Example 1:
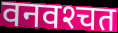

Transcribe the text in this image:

वनवश्चत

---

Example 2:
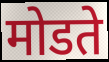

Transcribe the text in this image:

मोडते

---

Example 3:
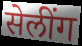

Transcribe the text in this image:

सेलींग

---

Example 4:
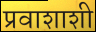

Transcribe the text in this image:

प्रवाशाशी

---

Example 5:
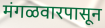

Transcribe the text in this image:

मंगळवारपासून